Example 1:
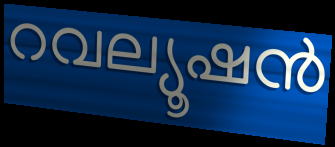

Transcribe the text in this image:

റവല്യൂഷൻ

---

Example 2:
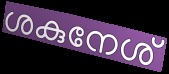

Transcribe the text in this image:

ശകുനേശ്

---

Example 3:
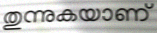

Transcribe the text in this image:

തുന്നുകയാണ്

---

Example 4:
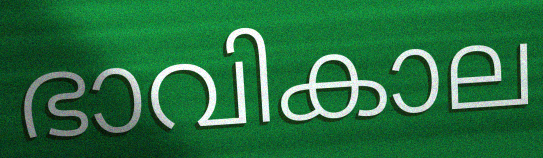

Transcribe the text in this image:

ഭാവികാല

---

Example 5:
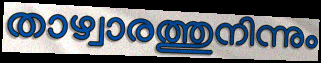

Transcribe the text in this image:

താഴ്വാരത്തുനിന്നും